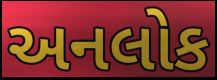
અનલોક